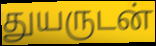
துயருடன்